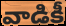
వాడికీ